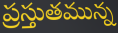
ప్రస్తుతమున్న